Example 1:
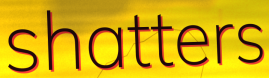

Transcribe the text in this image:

shatters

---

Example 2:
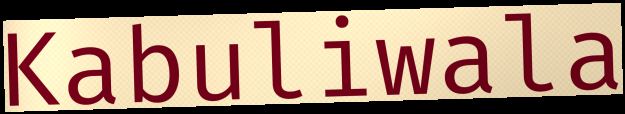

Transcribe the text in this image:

Kabuliwala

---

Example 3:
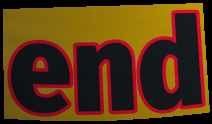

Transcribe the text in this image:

end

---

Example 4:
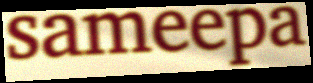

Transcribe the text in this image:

sameepa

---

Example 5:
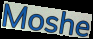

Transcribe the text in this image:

Moshe